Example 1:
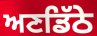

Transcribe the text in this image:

ਅਣਡਿੱਠੇ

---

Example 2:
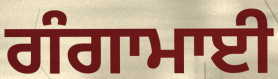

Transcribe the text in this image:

ਗੰਗਾਮਾਈ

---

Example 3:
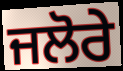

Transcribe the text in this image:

ਜਲੋਰੇ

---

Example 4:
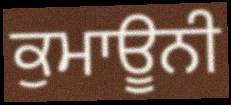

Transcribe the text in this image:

ਕੁਮਾਊਨੀ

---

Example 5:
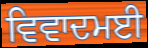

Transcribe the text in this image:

ਵਿਵਾਦਮਈ